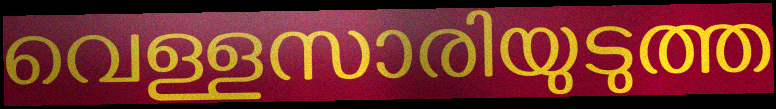
വെള്ളസാരിയുടുത്ത